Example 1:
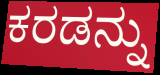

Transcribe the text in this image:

ಕರಡನ್ನು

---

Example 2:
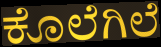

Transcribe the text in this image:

ಕೊಲೆಗಿಲೆ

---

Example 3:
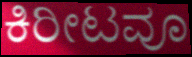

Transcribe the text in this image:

ಕಿರೀಟವೂ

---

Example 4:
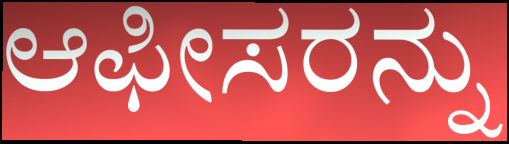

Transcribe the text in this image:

ಆಫೀಸರನ್ನು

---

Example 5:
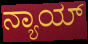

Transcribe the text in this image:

ನ್ಯಾಯ್